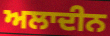
ਅਲਾਦੀਨ